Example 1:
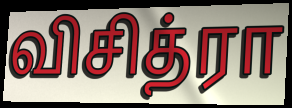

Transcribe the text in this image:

விசித்ரா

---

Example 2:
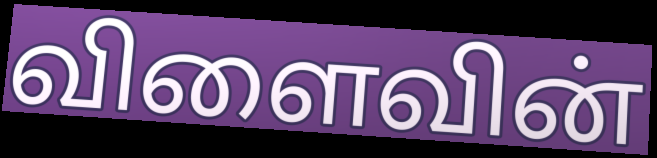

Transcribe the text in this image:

விளைவின்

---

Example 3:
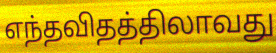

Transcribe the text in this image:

எந்தவிதத்திலாவது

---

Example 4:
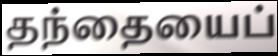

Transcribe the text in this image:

தந்தையைப்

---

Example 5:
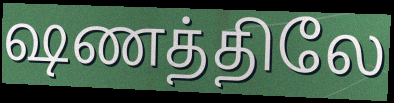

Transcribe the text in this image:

ஷணத்திலே